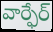
వార్ఫేర్